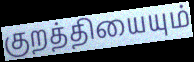
குறத்தியையும்